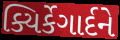
ક્યિર્કેગાર્દને